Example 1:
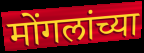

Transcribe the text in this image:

मोंगलांच्या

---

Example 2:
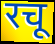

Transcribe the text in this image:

रचू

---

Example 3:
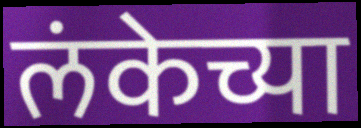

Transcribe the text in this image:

लंकेच्या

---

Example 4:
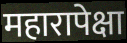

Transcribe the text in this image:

महारापेक्षा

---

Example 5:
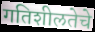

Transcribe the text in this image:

गतिशीलतेचे